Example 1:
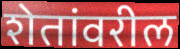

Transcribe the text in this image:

शेतांवरील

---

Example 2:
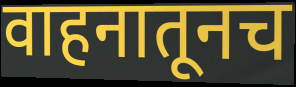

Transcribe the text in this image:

वाहनातूनच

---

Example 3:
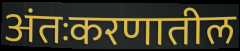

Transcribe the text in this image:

अंतःकरणातील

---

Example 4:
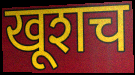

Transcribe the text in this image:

खूशच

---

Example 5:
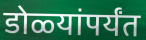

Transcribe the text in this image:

डोळ्यांपर्यंत